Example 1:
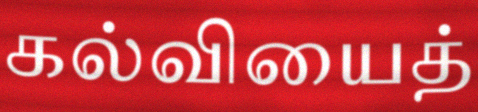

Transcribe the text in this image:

கல்வியைத்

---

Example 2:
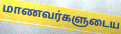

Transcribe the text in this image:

மாணவர்களுடைய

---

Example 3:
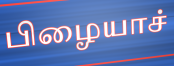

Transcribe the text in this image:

பிழையாச்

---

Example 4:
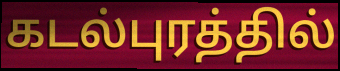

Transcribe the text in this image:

கடல்புரத்தில்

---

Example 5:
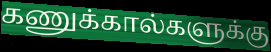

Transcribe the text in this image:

கணுக்கால்களுக்கு